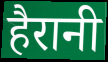
हैरानी